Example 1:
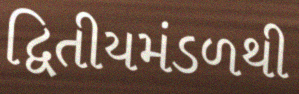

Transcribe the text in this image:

દ્વિતીયમંડળથી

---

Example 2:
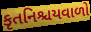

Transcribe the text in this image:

કૃતનિશ્ચયવાળો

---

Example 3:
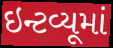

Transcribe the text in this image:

ઇન્ટવ્યૂમાં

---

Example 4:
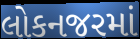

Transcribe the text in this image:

લોકનજરમાં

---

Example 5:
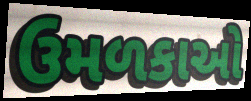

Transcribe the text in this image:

ઉમળકાઓ